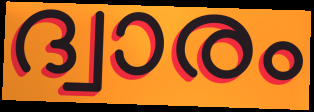
ദ്വാരം